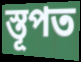
স্তূপত